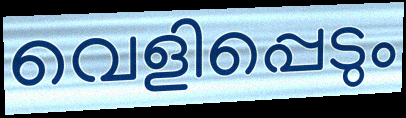
വെളിപ്പെടും